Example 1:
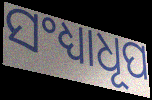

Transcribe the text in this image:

ସଂଧ୍ୟାଧୂପ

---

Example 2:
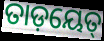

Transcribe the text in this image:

ତାଡ଼ୟେତ୍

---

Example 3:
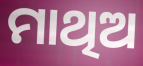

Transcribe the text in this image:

ମାଥିଅ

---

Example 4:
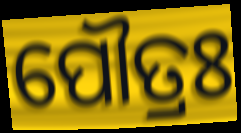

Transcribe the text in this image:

ପୌତ୍ରଃ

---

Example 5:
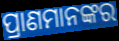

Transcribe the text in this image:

ପ୍ରାଣମାନଙ୍କର